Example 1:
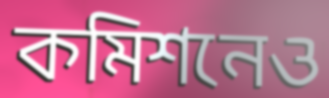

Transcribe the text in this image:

কমিশনেও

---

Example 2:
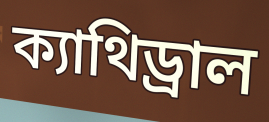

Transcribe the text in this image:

ক্যাথিড্রাল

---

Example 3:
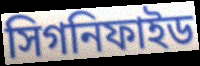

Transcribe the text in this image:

সিগনিফাইড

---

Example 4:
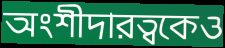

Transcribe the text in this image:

অংশীদারত্বকেও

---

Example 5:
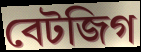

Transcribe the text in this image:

বেটজিগ